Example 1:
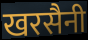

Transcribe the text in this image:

खरसैनी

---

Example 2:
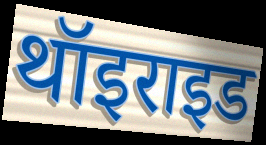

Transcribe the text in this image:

थॉइराइड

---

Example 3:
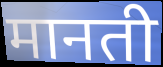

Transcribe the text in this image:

मानती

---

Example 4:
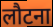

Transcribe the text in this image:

लौटना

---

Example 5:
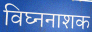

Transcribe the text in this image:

विघ्ननाशक